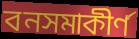
বনসমাকীর্ণ